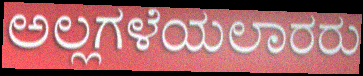
ಅಲ್ಲಗಳೆಯಲಾರರು